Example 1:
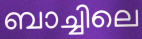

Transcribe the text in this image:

ബാച്ചിലെ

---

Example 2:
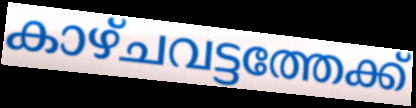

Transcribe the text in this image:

കാഴ്ചവട്ടത്തേക്ക്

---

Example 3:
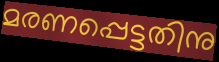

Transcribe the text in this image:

മരണപ്പെട്ടതിനു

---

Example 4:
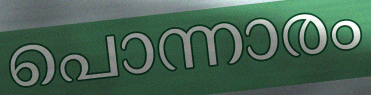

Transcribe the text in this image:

പൊന്നാരം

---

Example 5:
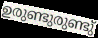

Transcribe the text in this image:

ഉരുണ്ടുരുണ്ടു്